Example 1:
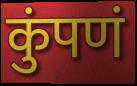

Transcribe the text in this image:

कुंपणं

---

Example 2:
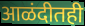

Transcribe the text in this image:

आळंदीतही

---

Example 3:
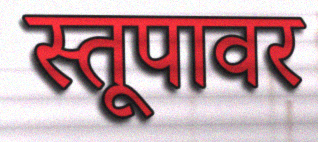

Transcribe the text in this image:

स्तूपावर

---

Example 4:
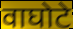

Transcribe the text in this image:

वाघोटे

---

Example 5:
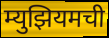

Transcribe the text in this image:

म्युझियमची